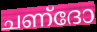
ചണ്ദോ